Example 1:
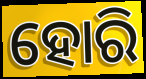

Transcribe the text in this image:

ହୋରି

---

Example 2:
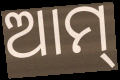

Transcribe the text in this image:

ଆମ୍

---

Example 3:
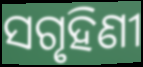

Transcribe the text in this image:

ସଗୃହିଣୀ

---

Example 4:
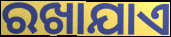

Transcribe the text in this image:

ରଖାଯାଏ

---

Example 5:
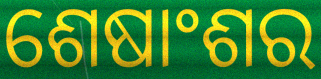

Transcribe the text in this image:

ଶେଷାଂଶର